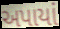
અપાયાં